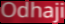
Odhaji